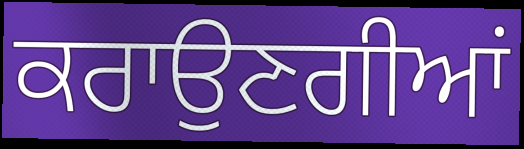
ਕਰਾਉਣਗੀਆਂ